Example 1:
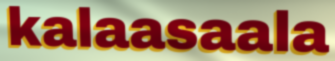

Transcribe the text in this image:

kalaasaala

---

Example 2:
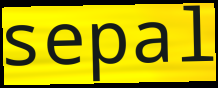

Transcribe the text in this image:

sepal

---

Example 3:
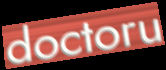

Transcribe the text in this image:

doctoru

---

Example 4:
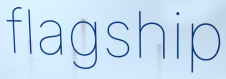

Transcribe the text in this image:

flagship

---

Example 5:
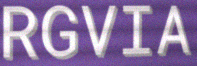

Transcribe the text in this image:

RGVIA